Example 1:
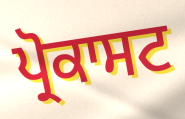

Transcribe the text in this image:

ਪ੍ਰੋਕਾਸਟ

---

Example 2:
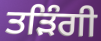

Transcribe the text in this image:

ਤੜਿੰਗੀ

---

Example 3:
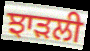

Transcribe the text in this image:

ਝਾੜਲੀ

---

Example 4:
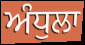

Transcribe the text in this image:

ਅੰਧੁਲਾ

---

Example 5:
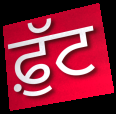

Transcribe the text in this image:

ਫ਼ੁੱਟ